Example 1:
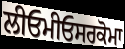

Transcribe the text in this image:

ਲੀਓਮੀਓਸਰਕੋਮਾ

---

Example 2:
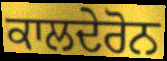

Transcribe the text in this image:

ਕਾਲਦੇਰੋਨ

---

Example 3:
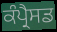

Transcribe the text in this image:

ਕੰਪ੍ਰੈਸਡ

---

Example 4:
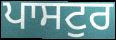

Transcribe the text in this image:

ਪਾਸਟੁਰ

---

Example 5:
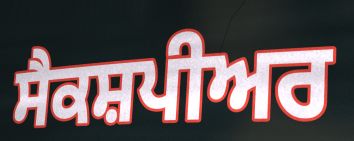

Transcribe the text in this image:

ਸੈਕਸ਼ਪੀਅਰ